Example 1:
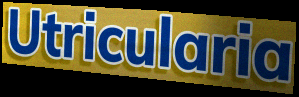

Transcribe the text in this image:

Utricularia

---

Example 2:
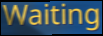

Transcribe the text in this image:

Waiting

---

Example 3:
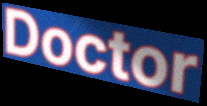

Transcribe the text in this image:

Doctor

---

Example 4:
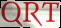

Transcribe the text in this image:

QRT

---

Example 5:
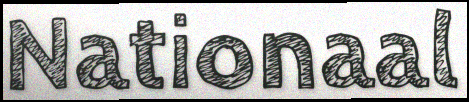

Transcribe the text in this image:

Nationaal